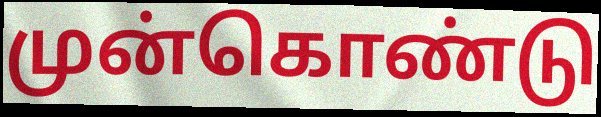
முன்கொண்டு